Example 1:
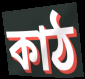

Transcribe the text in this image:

কাঠ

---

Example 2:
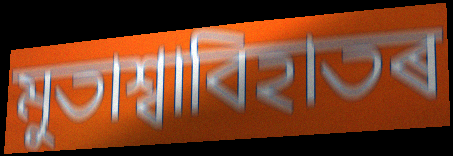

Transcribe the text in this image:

মুতাশ্বাবিহাতৰ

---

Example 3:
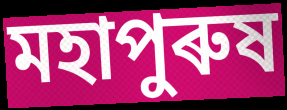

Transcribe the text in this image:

মহাপুৰুষ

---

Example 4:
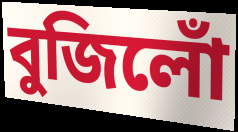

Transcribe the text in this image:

বুজিলোঁ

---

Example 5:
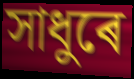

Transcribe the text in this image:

সাধুৰে